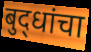
बुद्धांचा